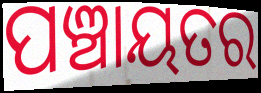
ପଞ୍ଚାୟତର